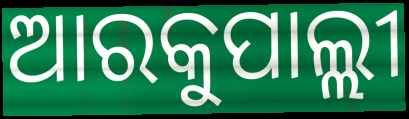
ଆରକୁପାଲ୍ଲୀ